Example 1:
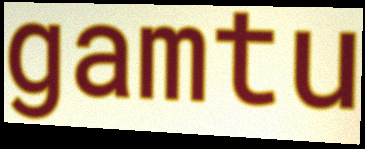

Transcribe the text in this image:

gamtu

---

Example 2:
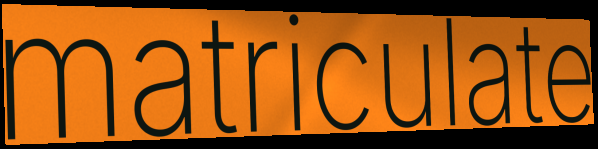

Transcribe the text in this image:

matriculate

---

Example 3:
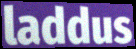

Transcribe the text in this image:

laddus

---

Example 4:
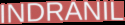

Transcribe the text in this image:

INDRANIL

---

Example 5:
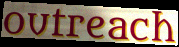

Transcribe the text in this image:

outreach